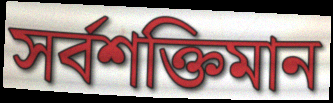
সৰ্বশক্তিমান